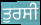
ਤੁਰਸੀ